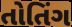
તોતિંગ